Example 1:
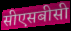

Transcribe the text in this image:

सीएसबीसी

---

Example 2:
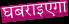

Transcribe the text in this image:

घबराइएगा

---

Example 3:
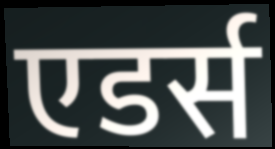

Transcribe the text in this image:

एडर्स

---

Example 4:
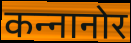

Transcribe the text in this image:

कन्नानोर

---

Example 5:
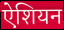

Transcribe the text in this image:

ऐशियन